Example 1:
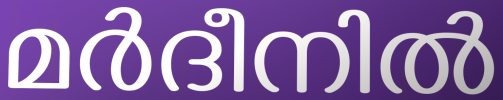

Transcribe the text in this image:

മർദീനിൽ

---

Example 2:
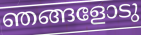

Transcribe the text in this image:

ഞങ്ങളോടു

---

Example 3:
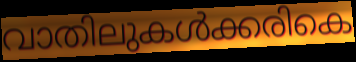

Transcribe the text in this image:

വാതിലുകൾക്കരികെ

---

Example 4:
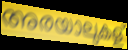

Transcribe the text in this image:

അരയാലുകള്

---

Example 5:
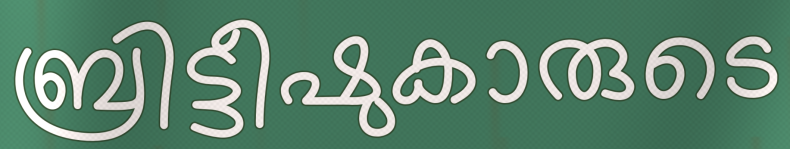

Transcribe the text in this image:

ബ്രിട്ടീഷുകാരുടെ